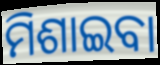
ମିଶାଇବା